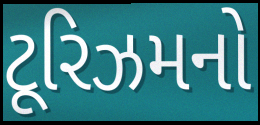
ટૂરિઝમનો